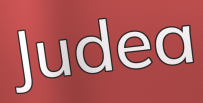
Judea